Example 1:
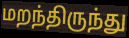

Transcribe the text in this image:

மறந்திருந்து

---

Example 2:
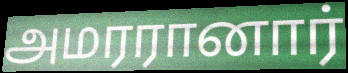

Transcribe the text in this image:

அமரரானார்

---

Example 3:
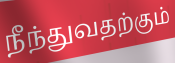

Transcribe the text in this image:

நீந்துவதற்கும்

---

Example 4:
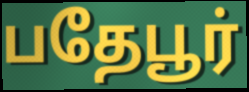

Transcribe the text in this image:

பதேபூர்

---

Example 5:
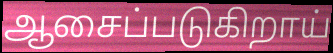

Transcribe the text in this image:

ஆசைப்படுகிறாய்